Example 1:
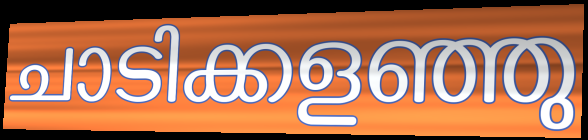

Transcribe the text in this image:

ചാടിക്കളഞ്ഞു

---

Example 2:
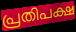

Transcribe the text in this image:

പ്രതിപക്ഷ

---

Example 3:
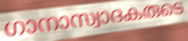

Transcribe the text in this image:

ഗാനാസ്വാദകരുടെ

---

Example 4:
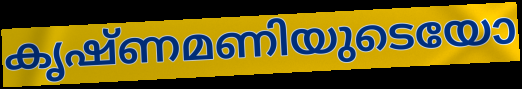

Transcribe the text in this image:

കൃഷ്ണമണിയുടെയോ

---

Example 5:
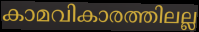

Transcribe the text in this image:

കാമവികാരത്തിലല്ല